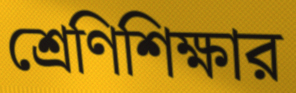
শ্রেণিশিক্ষার